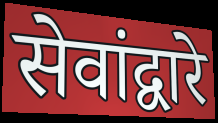
सेवांद्वारे